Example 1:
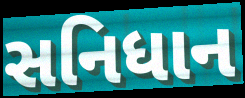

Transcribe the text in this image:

સનિધાન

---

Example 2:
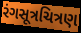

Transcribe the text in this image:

રંગસૂત્રચિત્રણ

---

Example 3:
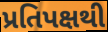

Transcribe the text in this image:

પ્રતિપક્ષથી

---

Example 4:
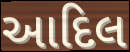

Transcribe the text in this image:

આદિલ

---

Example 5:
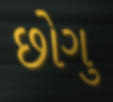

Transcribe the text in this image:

છોગુ